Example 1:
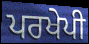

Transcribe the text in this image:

ਪਰਖੇਪੀ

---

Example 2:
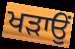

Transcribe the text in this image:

ਖੜਾਉਂ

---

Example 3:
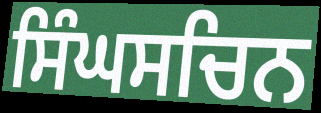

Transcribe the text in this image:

ਸਿੰਘਸਚਿਨ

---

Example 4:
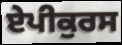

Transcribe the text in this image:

ਏਪੀਕੁਰਸ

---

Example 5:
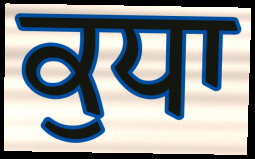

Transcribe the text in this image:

ਕੁਧਾ